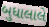
બુધાલાલે